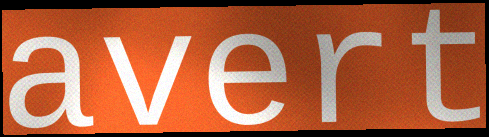
avert